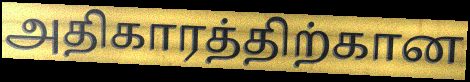
அதிகாரத்திற்கான